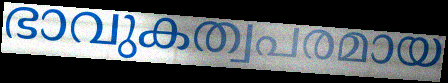
ഭാവുകത്വപരമായ